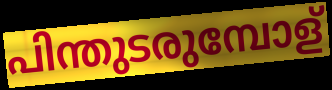
പിന്തുടരുമ്പോള്